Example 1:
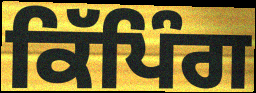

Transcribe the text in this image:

ਕਿੱਪਿੰਗ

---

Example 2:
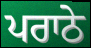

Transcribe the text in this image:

ਪਰਾਠੇ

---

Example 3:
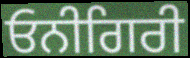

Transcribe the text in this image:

ਓਨੀਗਿਰੀ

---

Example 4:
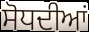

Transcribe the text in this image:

ਸੋਧਦੀਆਂ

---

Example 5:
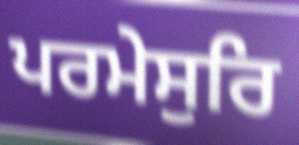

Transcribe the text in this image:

ਪਰਮੇਸੁਰਿ